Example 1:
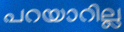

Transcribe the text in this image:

പറയാറില്ല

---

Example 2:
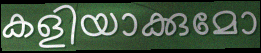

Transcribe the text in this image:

കളിയാക്കുമോ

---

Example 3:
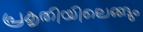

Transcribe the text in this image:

പ്രകൃതിയിലെങ്ങും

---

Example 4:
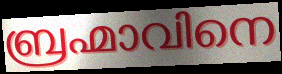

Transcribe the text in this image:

ബ്രഹ്മാവിനെ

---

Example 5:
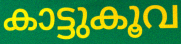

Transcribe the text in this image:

കാട്ടുകൂവ